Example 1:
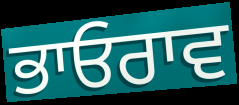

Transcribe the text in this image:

ਭਾਓਰਾਵ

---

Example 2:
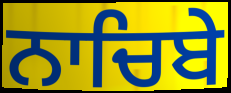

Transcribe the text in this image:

ਨਾਚਿਬੇ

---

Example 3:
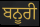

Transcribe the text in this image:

ਬਨੂਰੀ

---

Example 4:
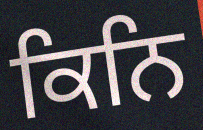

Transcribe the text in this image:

ਕਿਨਿ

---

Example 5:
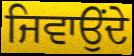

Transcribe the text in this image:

ਜਿਵਾਉਂਦੇ